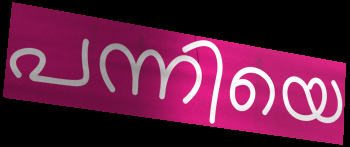
പന്നിയെ